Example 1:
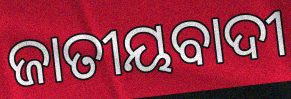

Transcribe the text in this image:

ଜାତୀୟବାଦୀ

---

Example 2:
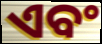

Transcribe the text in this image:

ଏବଂ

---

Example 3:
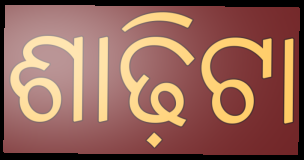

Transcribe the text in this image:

ଶାଢ଼ିଟା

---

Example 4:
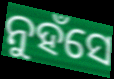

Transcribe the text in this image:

ନୁହଁସେ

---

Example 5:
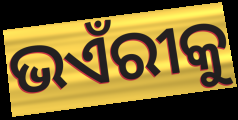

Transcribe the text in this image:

ଭଏଁରୀକୁ